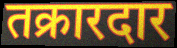
तक्रारदार